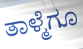
ತಾಳ್ಮೆಗೂ